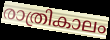
രാത്രികാലം